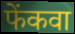
फेंकवा